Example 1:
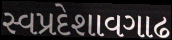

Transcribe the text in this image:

સ્વપ્રદેશાવગાઢ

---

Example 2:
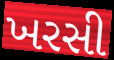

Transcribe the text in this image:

ખરસી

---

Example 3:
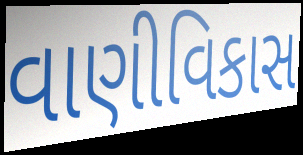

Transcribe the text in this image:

વાણીવિકાસ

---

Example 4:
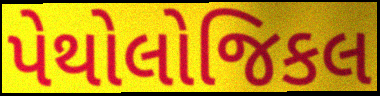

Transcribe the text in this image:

પેથોલોજિકલ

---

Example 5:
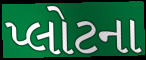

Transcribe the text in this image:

પ્લોટના